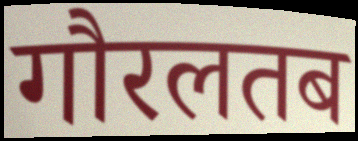
गौरलतब